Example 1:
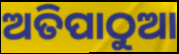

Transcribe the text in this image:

ଅତିପାଠୁଆ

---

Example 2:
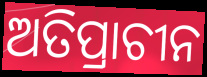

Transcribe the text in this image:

ଅତିପ୍ରାଚୀନ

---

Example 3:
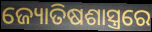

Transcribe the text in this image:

ଜ୍ୟୋତିଷଶାସ୍ତ୍ରରେ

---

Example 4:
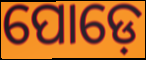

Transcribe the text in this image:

ପୋଡ଼େ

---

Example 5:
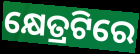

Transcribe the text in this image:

କ୍ଷେତ୍ରଟିରେ